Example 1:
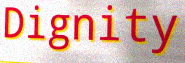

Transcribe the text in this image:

Dignity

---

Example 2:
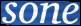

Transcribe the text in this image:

sone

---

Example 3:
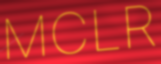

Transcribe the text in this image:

MCLR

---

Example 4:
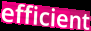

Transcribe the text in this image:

efficient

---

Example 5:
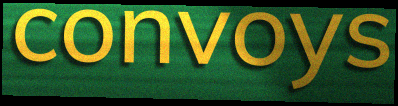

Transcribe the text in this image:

convoys